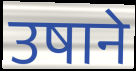
उषाने